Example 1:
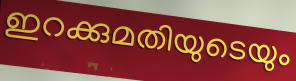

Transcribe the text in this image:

ഇറക്കുമതിയുടെയും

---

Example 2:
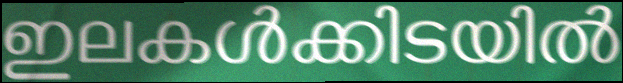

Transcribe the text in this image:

ഇലകൾക്കിടയിൽ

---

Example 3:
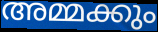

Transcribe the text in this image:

അമ്മക്കും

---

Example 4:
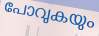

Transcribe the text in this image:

പോവുകയും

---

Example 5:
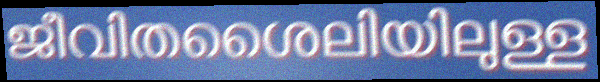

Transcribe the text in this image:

ജീവിതശൈലിയിലുള്ള